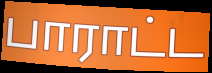
பாராட்ட